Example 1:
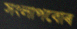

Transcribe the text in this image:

সংলাপবোৰ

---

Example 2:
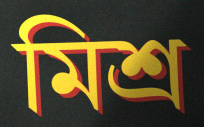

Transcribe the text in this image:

মিশ্ৰ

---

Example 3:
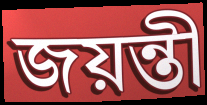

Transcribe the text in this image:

জয়ন্তী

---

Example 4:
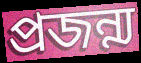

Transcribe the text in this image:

প্ৰজন্ম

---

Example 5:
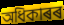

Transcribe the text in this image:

অধিকাৰৰ